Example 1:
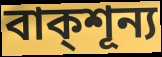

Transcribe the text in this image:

বাক্শূন্য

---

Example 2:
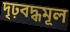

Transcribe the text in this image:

দৃঢ়বদ্ধমূল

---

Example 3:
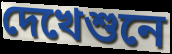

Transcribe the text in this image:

দেখেশুনে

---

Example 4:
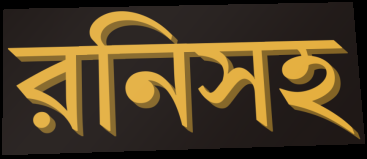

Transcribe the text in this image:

রনিসহ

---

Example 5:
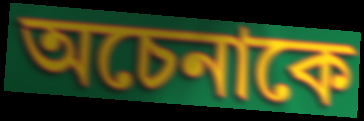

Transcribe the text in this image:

অচেনাকে